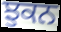
ਝੁਕਨ